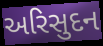
અરિસુદન